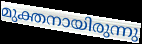
മുക്തനായിരുന്നു